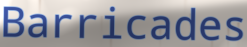
Barricades